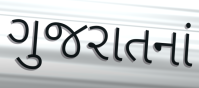
ગુજરાતનાં